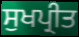
ਸੁਖਪ੍ਰੀਤ